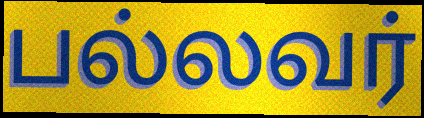
பல்லவர்